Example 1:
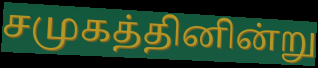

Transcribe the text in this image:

சமுகத்தினின்று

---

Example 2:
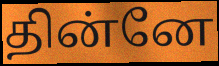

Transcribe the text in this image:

தின்னே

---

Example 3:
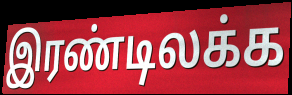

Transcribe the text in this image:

இரண்டிலக்க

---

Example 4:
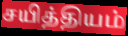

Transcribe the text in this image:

சயித்தியம்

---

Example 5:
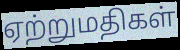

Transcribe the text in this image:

ஏற்றுமதிகள்